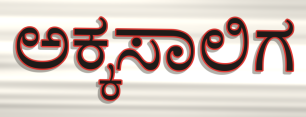
ಅಕ್ಕಸಾಲಿಗ